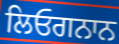
ਲਿਓਗਨਾਨ